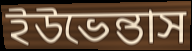
ইউভেন্তাস